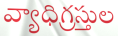
వ్యాధిగ్రస్తుల